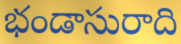
భండాసురాది